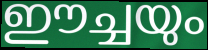
ഈച്ചയും